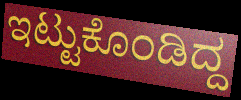
ಇಟ್ಟುಕೊಂಡಿದ್ದ